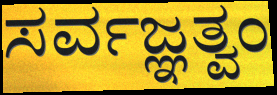
ಸರ್ವಜ್ಞತ್ವಂ